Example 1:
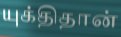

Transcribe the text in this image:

யுக்திதான்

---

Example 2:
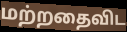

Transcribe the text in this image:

மற்றதைவிட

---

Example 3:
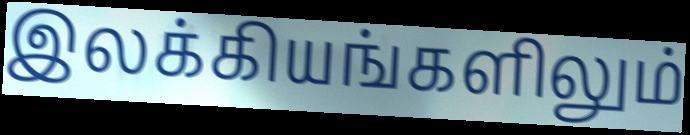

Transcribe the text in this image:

இலக்கியங்களிலும்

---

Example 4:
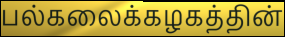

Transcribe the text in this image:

பல்கலைக்கழகத்தின்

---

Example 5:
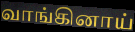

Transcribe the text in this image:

வாங்கினாய்